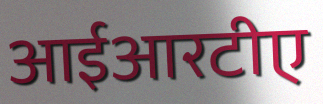
आईआरटीए